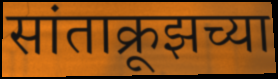
सांताक्रूझच्या